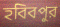
হবিবপুর